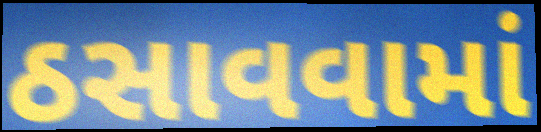
ઠસાવવામાં